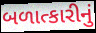
બળાત્કારીનું